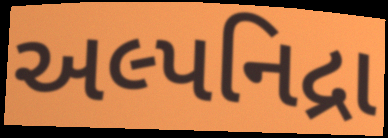
અલ્પનિદ્રા